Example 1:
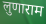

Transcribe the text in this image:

लुणाराम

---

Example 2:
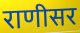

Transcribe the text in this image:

राणीसर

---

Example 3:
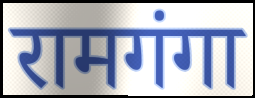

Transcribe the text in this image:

रामगंगा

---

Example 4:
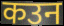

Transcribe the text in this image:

कउन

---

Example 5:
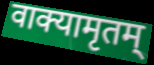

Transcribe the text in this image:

वाक्यामृतम्